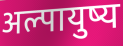
अल्पायुष्य